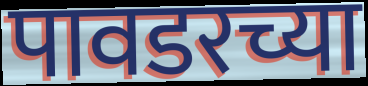
पावडरच्या